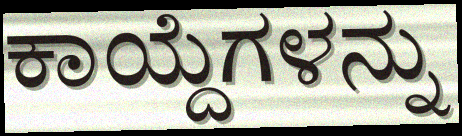
ಕಾಯ್ದೆಗಳನ್ನು